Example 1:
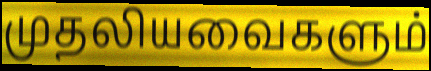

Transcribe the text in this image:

முதலியவைகளும்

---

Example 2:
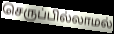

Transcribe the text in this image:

செருப்பில்லாமல்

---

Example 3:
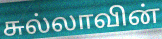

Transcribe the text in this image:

சுல்லாவின்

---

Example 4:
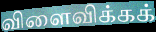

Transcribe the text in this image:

விளைவிக்கக்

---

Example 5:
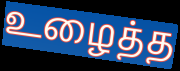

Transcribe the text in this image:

உழைத்த